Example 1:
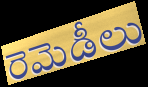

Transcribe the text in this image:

రెమెడీలు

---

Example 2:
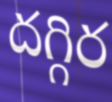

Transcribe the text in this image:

దగ్గిర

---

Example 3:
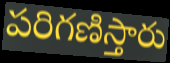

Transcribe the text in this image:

పరిగణిస్తారు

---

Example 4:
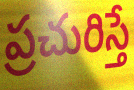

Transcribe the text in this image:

ప్రచురిస్తే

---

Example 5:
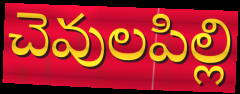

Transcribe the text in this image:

చెవులపిల్లి